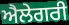
ਐਲੇਗਰੀ